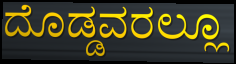
ದೊಡ್ಡವರಲ್ಲೂ